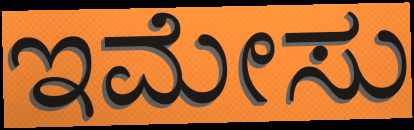
ಇಮೇಸು